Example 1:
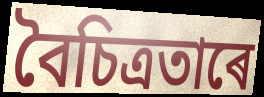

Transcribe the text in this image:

বৈচিত্ৰতাৰে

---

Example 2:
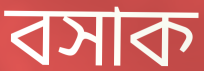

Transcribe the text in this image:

বসাক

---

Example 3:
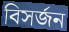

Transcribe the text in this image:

বিসৰ্জন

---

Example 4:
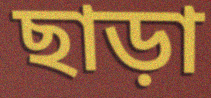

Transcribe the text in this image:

ছাড়া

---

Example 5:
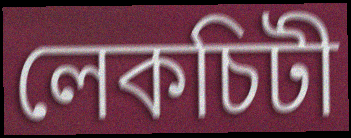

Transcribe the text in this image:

লেকচিটী